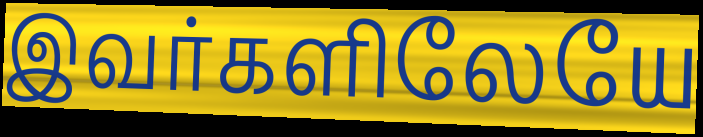
இவர்களிலேயே